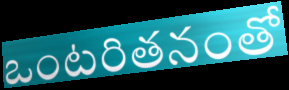
ఒంటరితనంతో